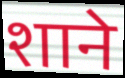
शाने